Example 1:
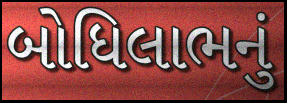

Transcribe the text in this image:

બોધિલાભનું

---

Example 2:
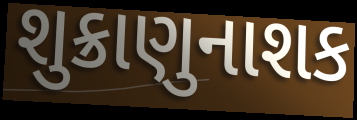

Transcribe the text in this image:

શુક્રાણુનાશક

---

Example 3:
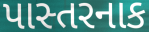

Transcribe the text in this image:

પાસ્તરનાક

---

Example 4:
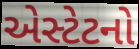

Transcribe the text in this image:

એસ્ટેટનો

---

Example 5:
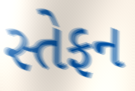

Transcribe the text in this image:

સ્તેફન